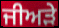
ਜੀਅੜੇ